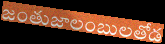
జంతుజాలంబులతోడ